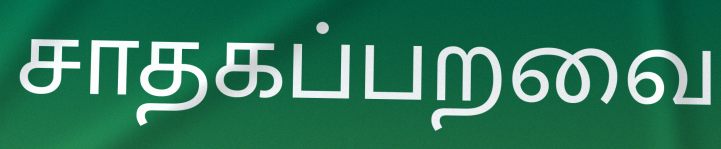
சாதகப்பறவை